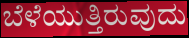
ಬೆಳೆಯುತ್ತಿರುವುದು